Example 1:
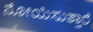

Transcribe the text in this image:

ನೋಯಿಸುತ್ತಾರೆ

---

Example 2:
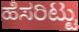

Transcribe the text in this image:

ಹೆಸರಿಟ್ಟು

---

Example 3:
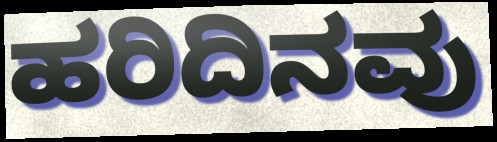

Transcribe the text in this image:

ಹರಿದಿನವು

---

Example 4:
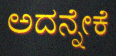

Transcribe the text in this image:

ಅದನ್ನೇಕೆ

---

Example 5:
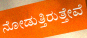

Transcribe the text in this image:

ನೋಡುತ್ತಿರುತ್ತೇವೆ